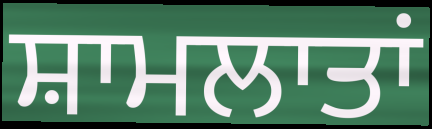
ਸ਼ਾਮਲਾਤਾਂ